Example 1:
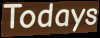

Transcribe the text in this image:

Todays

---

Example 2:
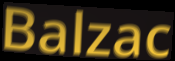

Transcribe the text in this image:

Balzac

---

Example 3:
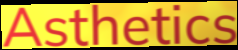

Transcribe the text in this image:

Asthetics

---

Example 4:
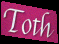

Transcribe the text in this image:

Toth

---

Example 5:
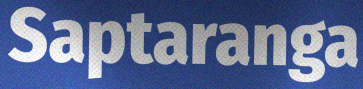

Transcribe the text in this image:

Saptaranga